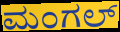
ಮಂಗಲ್